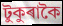
টুকুৰাকৈ